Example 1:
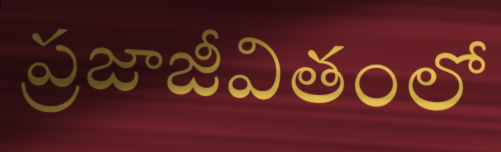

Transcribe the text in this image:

ప్రజాజీవితంలో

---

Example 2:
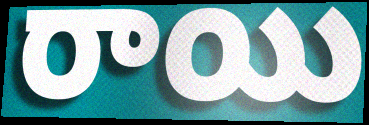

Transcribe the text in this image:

రాయి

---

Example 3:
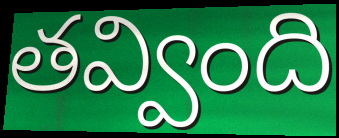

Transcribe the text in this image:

తవ్వింది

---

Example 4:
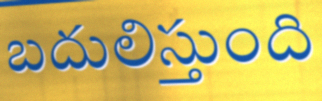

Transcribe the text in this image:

బదులిస్తుంది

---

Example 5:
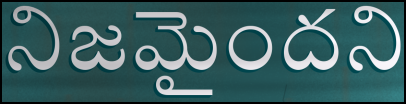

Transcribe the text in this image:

నిజమైందని